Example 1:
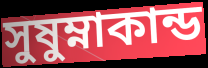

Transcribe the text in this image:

সুষুম্নাকান্ড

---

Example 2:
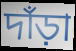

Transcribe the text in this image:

দাঁড়া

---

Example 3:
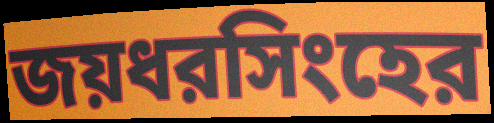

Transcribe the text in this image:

জয়ধরসিংহের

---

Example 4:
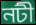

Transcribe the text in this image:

নটী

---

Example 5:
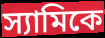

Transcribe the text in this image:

স্যামিকে